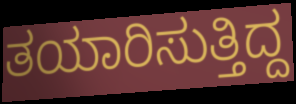
ತಯಾರಿಸುತ್ತಿದ್ದ